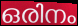
ഒരിനം